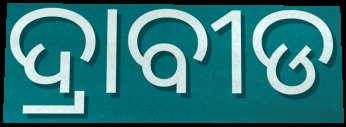
ଦ୍ରାବୀଡ